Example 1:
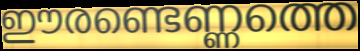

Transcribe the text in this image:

ഈരണ്ടെണ്ണത്തെ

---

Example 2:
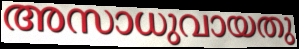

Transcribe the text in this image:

അസാധുവായതു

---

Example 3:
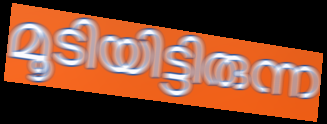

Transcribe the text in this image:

മൂടിയിട്ടിരുന്ന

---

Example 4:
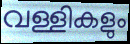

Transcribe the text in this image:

വള്ളികളും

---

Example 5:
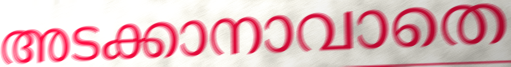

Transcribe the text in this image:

അടക്കാനാവാതെ